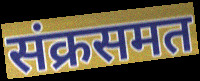
संक्रसमत